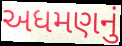
અધમણનું